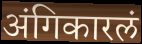
अंगिकारलं